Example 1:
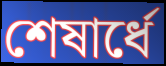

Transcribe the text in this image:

শেষার্ধে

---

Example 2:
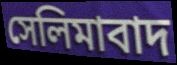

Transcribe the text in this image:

সেলিমাবাদ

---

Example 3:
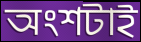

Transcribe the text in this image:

অংশটাই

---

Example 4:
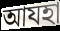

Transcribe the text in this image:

আযহা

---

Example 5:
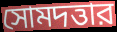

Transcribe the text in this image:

সোমদত্তার